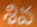
శివ